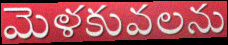
మెళకువలను